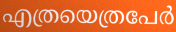
എത്രയെത്രപേർ